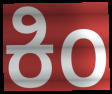
ಕಿಂ